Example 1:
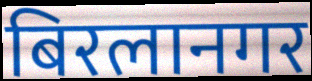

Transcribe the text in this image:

बिरलानगर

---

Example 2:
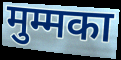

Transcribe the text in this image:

मुम्मका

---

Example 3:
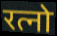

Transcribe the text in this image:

रत्नो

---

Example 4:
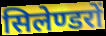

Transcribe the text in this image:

सिलेण्डरों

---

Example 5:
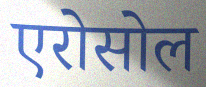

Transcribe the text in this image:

एरोसोल